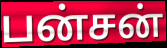
பன்சன்